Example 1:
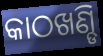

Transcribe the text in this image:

କାଠଖଣ୍ଡି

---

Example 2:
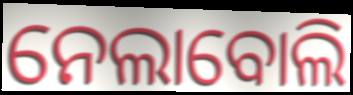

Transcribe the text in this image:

ନେଲାବୋଲି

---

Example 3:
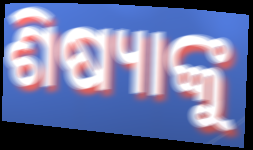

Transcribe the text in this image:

ଶିଷ୍ୟାଙ୍କୁ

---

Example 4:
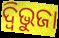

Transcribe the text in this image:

ଦ୍ଵିଭୁଜା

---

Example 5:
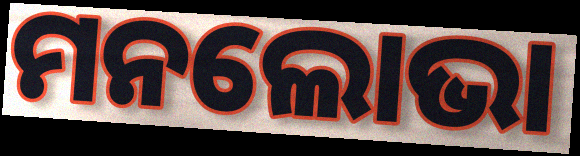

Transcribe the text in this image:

ମନଲୋଭା